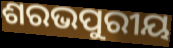
ଶରଭପୁରୀୟ